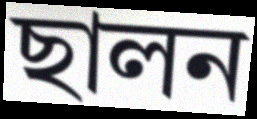
ছালন